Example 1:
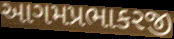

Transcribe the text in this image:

આગમપ્રભાકરજી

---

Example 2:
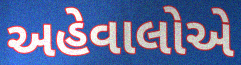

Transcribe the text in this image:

અહેવાલોએ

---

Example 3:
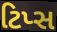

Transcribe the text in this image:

ટિપ્સ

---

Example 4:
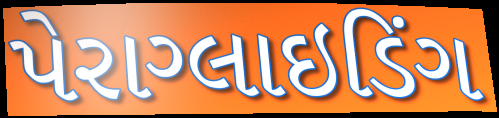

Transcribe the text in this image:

પેરાગ્લાઇડિંગ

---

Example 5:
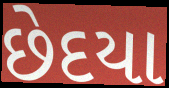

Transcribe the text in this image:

છેદયા